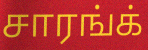
சாரங்க்